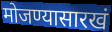
मोजण्यासारखं